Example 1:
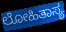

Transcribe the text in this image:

ಲೋಹಿತಾಸ್ಯ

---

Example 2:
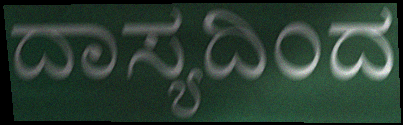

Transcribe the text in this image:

ದಾಸ್ಯದಿಂದ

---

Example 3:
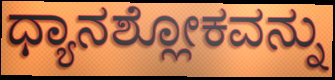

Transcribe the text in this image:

ಧ್ಯಾನಶ್ಲೋಕವನ್ನು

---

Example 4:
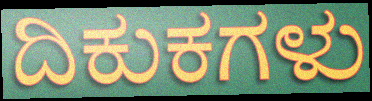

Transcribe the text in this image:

ದಿಕುಕಗಳು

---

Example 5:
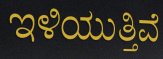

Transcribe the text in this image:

ಇಳಿಯುತ್ತಿವೆ